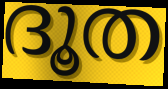
ദൂത